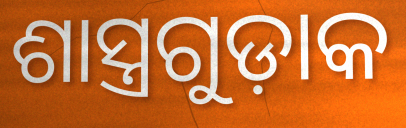
ଶାସ୍ତ୍ରଗୁଡ଼ାକ